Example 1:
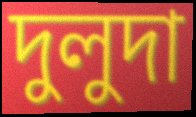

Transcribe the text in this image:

দুলুদা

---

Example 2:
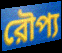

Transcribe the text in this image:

রৌপ্য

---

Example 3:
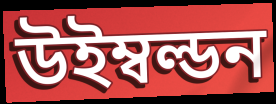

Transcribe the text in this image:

উইম্বল্ডন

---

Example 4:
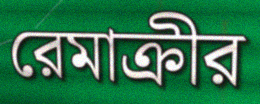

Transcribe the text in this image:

রেমাক্রীর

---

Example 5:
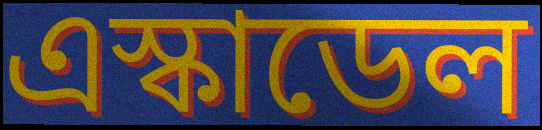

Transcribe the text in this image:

এস্কাডেল